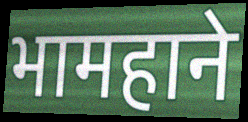
भामहाने